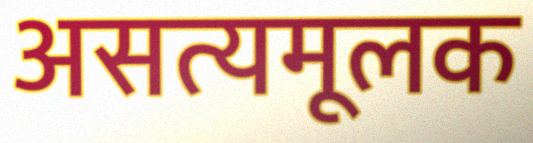
असत्यमूलक